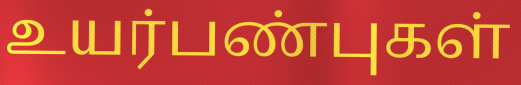
உயர்பண்புகள்